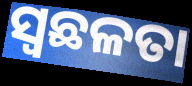
ସ୍ୱଛଳତା